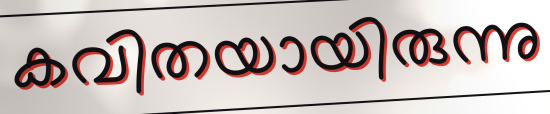
കവിതയായിരുന്നു